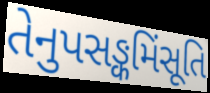
તેનુપસઙ્કમિંસૂતિ